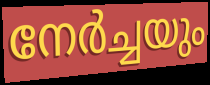
നേർച്ചയും